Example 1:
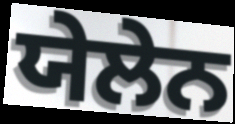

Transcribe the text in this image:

ਯੇਲੇਨ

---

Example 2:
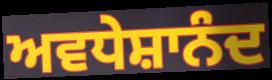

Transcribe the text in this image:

ਅਵਧੇਸ਼ਾਨੰਦ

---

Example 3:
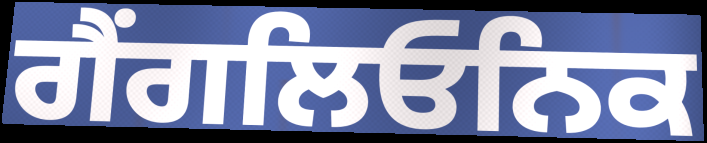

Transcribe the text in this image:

ਗੈਂਗਲਿਓਨਿਕ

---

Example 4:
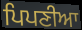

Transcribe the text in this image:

ਪਿਪਣੀਆ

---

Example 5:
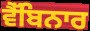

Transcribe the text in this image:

ਵੈੱਬਿਨਾਰ